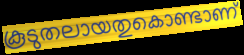
കൂടുതലായതുകൊണ്ടാണ്